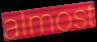
almost